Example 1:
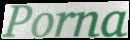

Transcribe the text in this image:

Porna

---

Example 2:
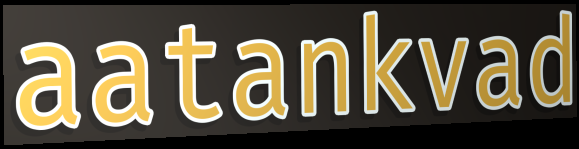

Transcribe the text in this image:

aatankvad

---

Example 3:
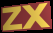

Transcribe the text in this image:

zx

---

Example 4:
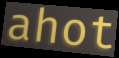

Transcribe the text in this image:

ahot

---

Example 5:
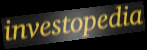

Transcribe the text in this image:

investopedia